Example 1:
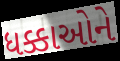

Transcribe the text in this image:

ધક્કાઓને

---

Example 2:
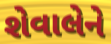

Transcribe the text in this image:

શેવાલેને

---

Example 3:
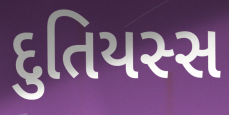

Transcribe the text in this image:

દુતિયસ્સ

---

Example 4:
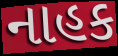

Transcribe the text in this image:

નાહક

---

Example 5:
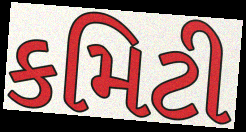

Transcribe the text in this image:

કમિટી